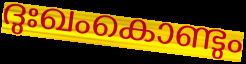
ദുഃഖംകൊണ്ടും